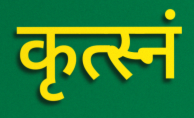
कृत्स्नं